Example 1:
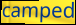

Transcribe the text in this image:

camped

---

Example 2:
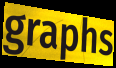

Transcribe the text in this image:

graphs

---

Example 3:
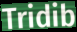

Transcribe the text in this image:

Tridib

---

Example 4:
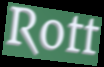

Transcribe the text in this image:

Rott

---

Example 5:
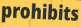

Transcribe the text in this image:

prohibits